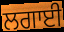
ਲਗਾਈ